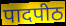
पादपीठ